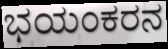
ಭಯಂಕರನ